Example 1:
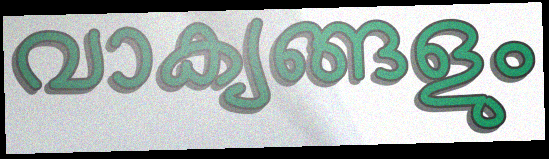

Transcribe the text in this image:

വാക്യങ്ങളും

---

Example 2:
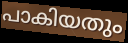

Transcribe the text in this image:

പാകിയതും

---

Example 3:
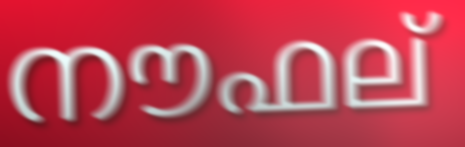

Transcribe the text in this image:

നൗഫല്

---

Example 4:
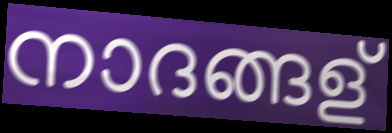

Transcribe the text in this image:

നാദങ്ങള്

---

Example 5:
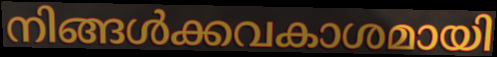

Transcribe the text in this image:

നിങ്ങൾക്കവകാശമായി